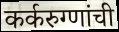
कर्करुग्णांची